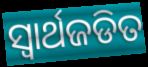
ସ୍ଵାର୍ଥଜଡିତ